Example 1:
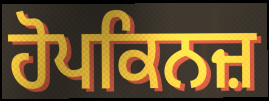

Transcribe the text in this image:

ਹੋਪਕਿਨਜ਼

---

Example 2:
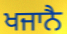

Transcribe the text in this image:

ਖਜਾਨੈ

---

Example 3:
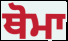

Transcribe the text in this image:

ਥੋਮਾ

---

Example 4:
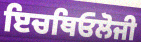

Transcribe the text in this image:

ਇਚਥਿਓਲੋਜੀ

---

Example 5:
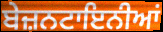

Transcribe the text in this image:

ਬੇਜ਼ਨਟਾਇਨੀਆਂ